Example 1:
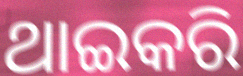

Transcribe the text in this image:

ଥାଇକରି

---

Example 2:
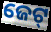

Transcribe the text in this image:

ଜେଟ୍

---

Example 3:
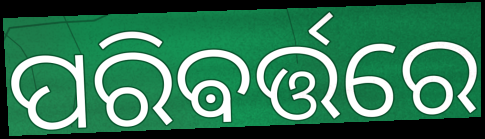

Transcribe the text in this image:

ପରିଵର୍ତ୍ତରେ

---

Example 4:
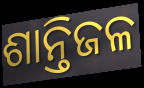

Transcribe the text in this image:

ଶାନ୍ତିଜଳ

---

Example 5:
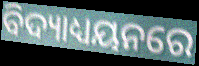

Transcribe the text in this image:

ବିଦ୍ୟାଧ୍ୟୟନରେ